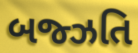
બજ્ઝતિ